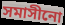
সমাসীনো